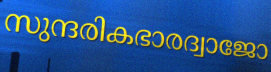
സുന്ദരികഭാരദ്വാജോ